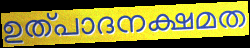
ഉത്പാദനക്ഷമത